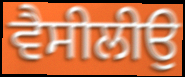
ਵੈਸੀਲੀਉ